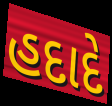
હદાદે